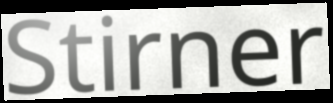
Stirner